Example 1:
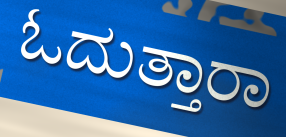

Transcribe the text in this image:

ಓದುತ್ತಾರಾ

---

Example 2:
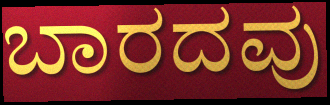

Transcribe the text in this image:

ಬಾರದವು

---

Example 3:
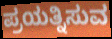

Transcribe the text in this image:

ಪ್ರಯತ್ನಿಸುವ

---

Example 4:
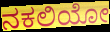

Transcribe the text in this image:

ನಕಲಿಯೋ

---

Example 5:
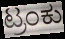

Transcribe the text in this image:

ಟ್ರಂಕು